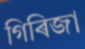
গিৰিজা